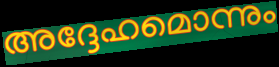
അദ്ദേഹമൊന്നും